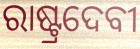
ରାଷ୍ଟ୍ରଦେବୀ